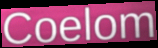
Coelom